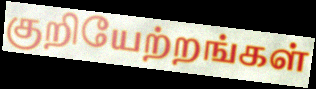
குறியேற்றங்கள்